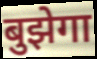
बुझेगा